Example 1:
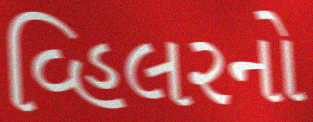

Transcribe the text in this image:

વ્હિલરનો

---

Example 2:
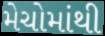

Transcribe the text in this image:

મેચોમાંથી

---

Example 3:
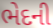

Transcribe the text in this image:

ભેદની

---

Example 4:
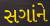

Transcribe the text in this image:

સગાંને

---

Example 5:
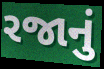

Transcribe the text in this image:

રજાનું